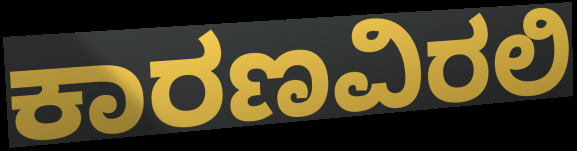
ಕಾರಣವಿರಲಿ